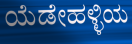
ಯೆಡೇಹಳ್ಳಿಯ